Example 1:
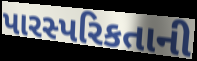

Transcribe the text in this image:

પારસ્પરિકતાની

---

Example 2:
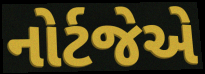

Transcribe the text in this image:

નોર્ટજેએ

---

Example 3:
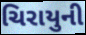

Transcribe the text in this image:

ચિરાયુની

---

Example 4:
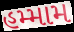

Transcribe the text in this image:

હમ્મામ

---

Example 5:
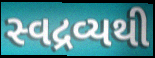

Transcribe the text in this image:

સ્વદ્રવ્યથી